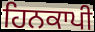
ਹਿਨਕਾਪੀ